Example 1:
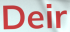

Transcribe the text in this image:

Deir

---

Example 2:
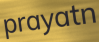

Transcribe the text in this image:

prayatn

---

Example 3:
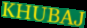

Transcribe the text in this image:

KHUBAJ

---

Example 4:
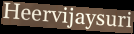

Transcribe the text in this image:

Heervijaysuri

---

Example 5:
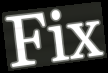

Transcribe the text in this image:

Fix